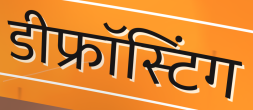
डीफ्रॉस्टिंग